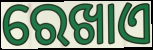
ରେଖାଏ